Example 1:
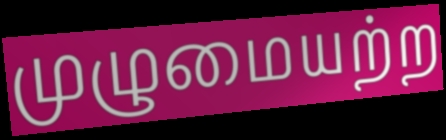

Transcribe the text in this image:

முழுமையற்ற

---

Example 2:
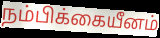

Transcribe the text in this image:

நம்பிக்கையீனம்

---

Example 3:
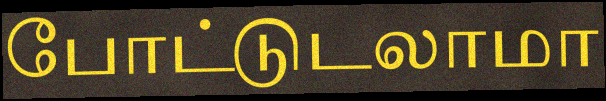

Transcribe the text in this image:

போட்டுடலாமா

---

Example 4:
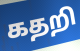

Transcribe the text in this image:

கதறி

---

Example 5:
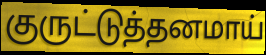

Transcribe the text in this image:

குருட்டுத்தனமாய்